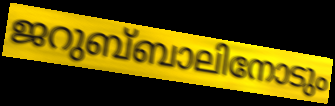
ജറുബ്‌ബാലിനോടും